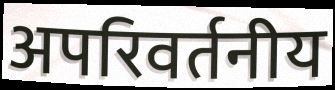
अपरिवर्तनीय